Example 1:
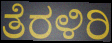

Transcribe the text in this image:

ತೆರಳಿರಿ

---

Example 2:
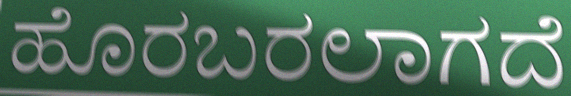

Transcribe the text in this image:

ಹೊರಬರಲಾಗದೆ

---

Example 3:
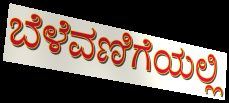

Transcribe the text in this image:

ಬೆಳೆವಣಿಗೆಯಲ್ಲಿ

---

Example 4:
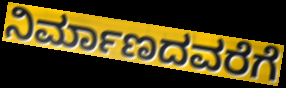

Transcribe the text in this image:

ನಿರ್ಮಾಣದವರೆಗೆ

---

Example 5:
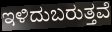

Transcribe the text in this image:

ಇಳಿದುಬರುತ್ತವೆ